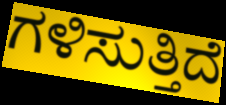
ಗಳಿಸುತ್ತಿದೆ